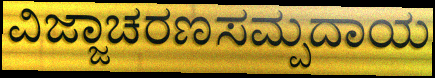
ವಿಜ್ಜಾಚರಣಸಮ್ಪದಾಯ